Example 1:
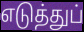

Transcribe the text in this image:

எடுத்துப்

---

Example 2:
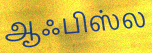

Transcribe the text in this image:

ஆஃபிஸ்ல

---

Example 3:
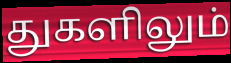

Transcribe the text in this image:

துகளிலும்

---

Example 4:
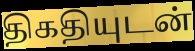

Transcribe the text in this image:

திகதியுடன்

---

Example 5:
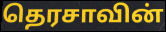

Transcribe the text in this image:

தெரசாவின்